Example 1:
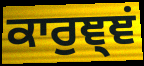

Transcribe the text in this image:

ਕਾਰੁਞ੍ਞਂ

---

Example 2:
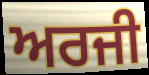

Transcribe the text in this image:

ਅਰਜੀ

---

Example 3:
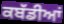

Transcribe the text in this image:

ਕਬੱਡੀਆਂ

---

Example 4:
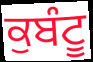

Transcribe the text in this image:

ਕੁਬੰਟੂ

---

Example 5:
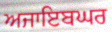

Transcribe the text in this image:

ਅਜਾਇਬਘਰ